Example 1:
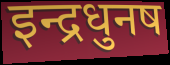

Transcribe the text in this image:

इन्द्रधुनष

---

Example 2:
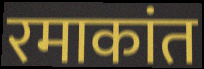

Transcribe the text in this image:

रमाकांत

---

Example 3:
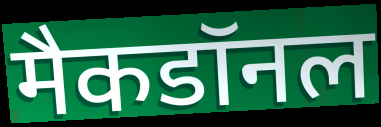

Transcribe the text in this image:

मैकडॉनल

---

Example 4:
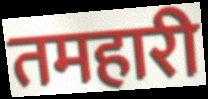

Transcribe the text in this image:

तमहारी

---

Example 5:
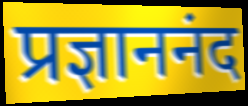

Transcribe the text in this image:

प्रज्ञाननंद